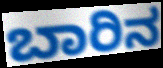
ಬಾರಿನ